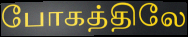
போகத்திலே